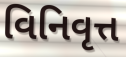
વિનિવૃત્ત